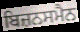
ਬਿਜ਼ਨਸਮੈਨ